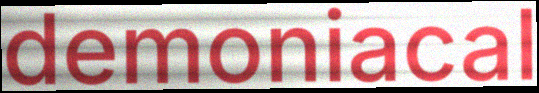
demoniacal